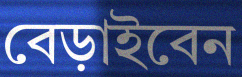
বেড়াইবেন